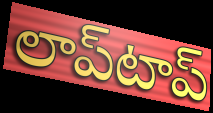
లాప్‌టాప్